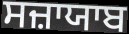
ਸਜ਼ਾਯਾਬ